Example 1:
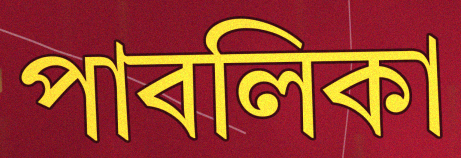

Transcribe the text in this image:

পাবলিকা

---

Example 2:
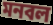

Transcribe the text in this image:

মনবল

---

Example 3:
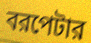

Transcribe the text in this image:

বরপেটার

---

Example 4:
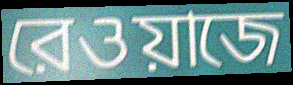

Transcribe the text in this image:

রেওয়াজে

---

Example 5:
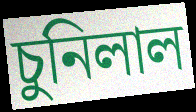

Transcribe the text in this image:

চুনিলাল